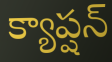
క్యాప్షన్